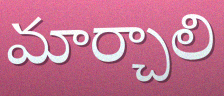
మార్చాలి